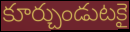
కూర్చుండుటకై